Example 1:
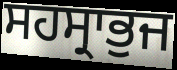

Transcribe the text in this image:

ਸਹਸ੍ਰਾਭੁਜ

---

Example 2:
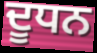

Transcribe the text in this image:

ਦੂਧਨ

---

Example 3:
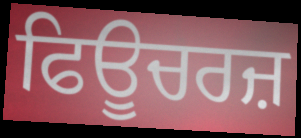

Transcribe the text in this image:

ਫਿਊਚਰਜ਼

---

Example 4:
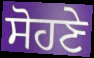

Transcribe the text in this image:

ਸੋਹਣੇ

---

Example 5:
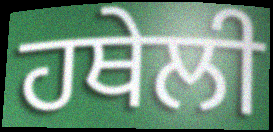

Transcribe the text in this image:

ਹਥੇਲੀ